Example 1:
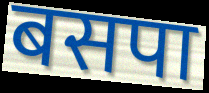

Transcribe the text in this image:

बसपा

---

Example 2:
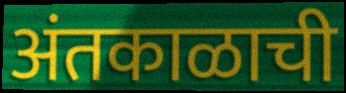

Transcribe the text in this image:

अंतकाळाची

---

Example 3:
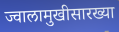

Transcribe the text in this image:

ज्वालामुखीसारख्या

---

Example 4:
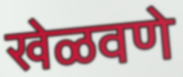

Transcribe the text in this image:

खेळवणे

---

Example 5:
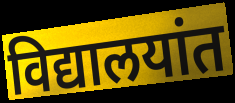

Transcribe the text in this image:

विद्यालयांत